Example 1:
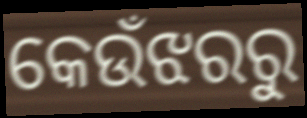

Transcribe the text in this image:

କେଉଁଝରରୁ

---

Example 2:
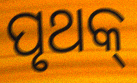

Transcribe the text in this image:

ପୃଥକ୍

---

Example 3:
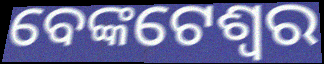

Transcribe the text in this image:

ବେଙ୍କଟେଶ୍ୱର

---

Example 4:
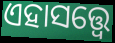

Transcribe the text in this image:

ଏହାସତ୍ତ୍ବେ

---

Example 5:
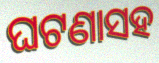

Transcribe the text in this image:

ଘଟଣାସହ